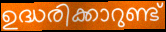
ഉദ്ധരിക്കാറുണ്ട്